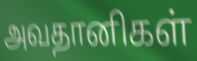
அவதானிகள்